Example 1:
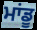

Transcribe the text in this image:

ਮਾਂਡੂ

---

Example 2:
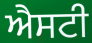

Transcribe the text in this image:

ਐਸਟੀ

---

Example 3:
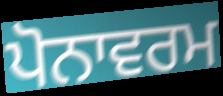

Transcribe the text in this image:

ਪੋਨਾਵਰਮ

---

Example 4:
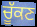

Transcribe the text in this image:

ਚੂੱਕਣ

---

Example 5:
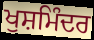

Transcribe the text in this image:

ਖੁਸ਼ਮਿੰਦਰ